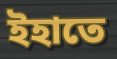
ইহাতে